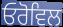
ਓਰੋਵਿਲ